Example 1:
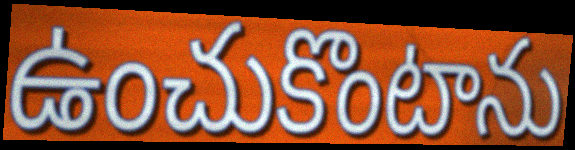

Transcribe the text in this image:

ఉంచుకొంటాను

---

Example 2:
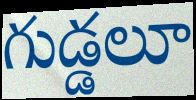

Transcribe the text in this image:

గుడ్డలూ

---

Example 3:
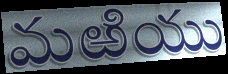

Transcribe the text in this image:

మఱియు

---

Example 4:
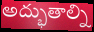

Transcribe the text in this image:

అద్భుతాల్ని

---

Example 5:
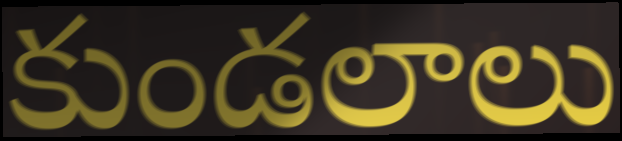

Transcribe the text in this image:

కుండలాలు